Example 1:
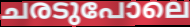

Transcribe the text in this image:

ചരടുപോലെ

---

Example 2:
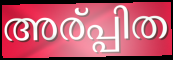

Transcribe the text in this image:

അര്പ്പിത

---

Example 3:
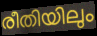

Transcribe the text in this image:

രീതിയിലും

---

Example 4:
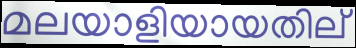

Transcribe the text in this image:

മലയാളിയായതില്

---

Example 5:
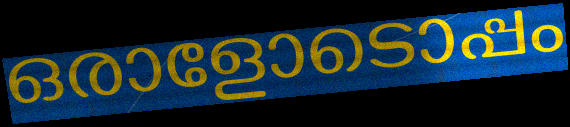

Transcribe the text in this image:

ഒരാളോടൊപ്പം